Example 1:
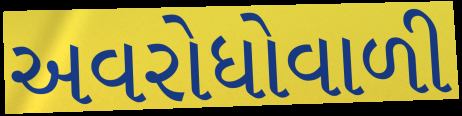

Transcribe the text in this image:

અવરોધોવાળી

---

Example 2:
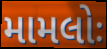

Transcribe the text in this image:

મામલોઃ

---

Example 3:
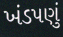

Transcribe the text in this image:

ખંડપણું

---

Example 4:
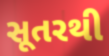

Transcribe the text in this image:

સૂતરથી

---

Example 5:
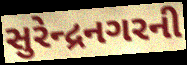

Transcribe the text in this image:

સુરેન્દ્રનગરની